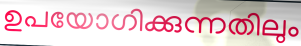
ഉപയോഗിക്കുന്നതിലും